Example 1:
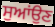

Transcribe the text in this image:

ਸੁਆਂਉਣ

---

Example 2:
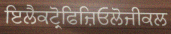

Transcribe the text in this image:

ਇਲੈਕਟ੍ਰੋਫਿਜ਼ਿਓਲੋਜੀਕਲ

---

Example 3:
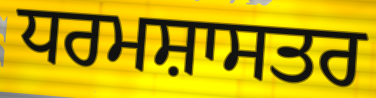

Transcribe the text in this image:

ਧਰਮਸ਼ਾਸਤਰ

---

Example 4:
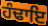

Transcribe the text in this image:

ਹੰਢਾਇ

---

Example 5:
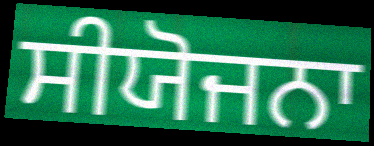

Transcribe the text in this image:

ਸੀਯੋਜਨਾ